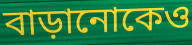
বাড়ানোকেও